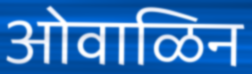
ओवाळिन